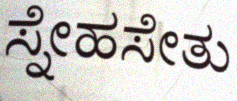
ಸ್ನೇಹಸೇತು